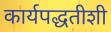
कार्यपद्धतीशी